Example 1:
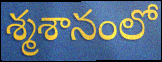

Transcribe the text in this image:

శ్మశానంలో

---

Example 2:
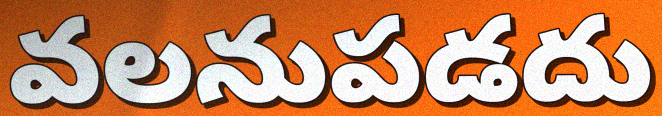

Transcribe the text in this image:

వలనుపడదు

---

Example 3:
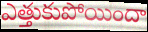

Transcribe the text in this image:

ఎత్తుకుపోయిందా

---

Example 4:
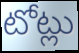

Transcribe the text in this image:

టోట్లు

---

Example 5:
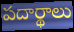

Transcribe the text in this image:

పదార్థాలు